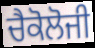
ਚੈਕੋਲੋਜੀ